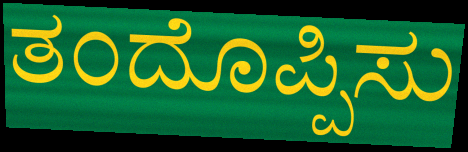
ತಂದೊಪ್ಪಿಸು